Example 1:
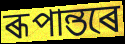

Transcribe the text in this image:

ৰূপান্তৰে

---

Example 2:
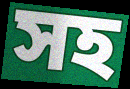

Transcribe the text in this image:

সহ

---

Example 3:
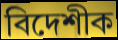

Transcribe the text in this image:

বিদেশীক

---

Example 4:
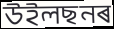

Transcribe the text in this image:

উইলছনৰ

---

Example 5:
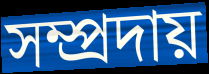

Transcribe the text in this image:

সম্প্ৰদায়